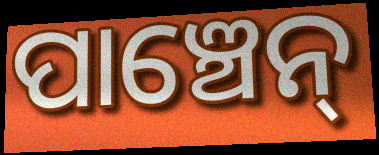
ପାଞ୍ଚେନ୍